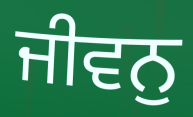
ਜੀਵਨੁ